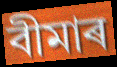
বীমাৰ